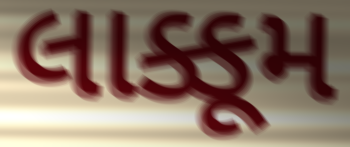
લાક્કૂમ